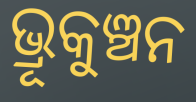
ଭ୍ରୂକୁଞ୍ଚନ